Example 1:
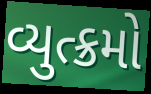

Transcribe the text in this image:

વ્યુત્ક્રમો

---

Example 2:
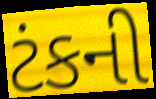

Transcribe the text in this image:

ટંકની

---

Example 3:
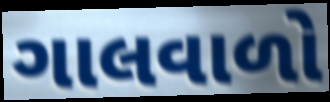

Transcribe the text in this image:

ગાલવાળો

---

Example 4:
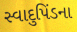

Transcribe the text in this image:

સ્વાદુપિંડના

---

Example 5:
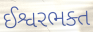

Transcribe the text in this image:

ઈશ્વરભક્ત